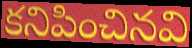
కనిపించినవి